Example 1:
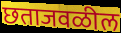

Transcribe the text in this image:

छताजवळील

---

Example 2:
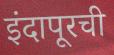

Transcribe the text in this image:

इंदापूरची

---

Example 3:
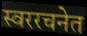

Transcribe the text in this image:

स्वररचनेत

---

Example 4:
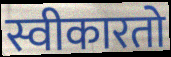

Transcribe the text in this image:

स्वीकारतो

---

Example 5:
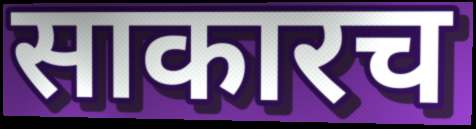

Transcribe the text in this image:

साकारच